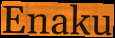
Enaku